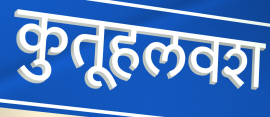
कुतूहलवश